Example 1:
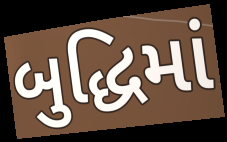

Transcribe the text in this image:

બુદ્ધિમાં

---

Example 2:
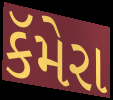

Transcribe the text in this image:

કૅમેરા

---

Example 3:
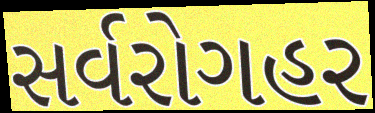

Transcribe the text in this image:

સર્વરોગહર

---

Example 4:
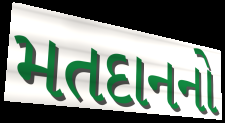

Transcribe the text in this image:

મતદાનનો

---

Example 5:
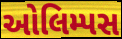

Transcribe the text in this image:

ઓલિમ્પસ